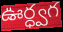
ఊర్ధ్వగ